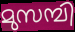
മുസമ്പി